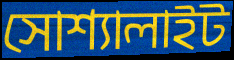
সোশ্যালাইট